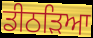
ਡੀਠੜਿਆ